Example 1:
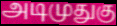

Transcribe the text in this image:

அடிமுதுகு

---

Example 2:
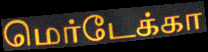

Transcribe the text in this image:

மெர்டேக்கா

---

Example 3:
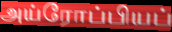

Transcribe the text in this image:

அய்ரோப்பியப்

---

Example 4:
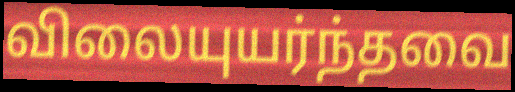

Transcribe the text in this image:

விலையுயர்ந்தவை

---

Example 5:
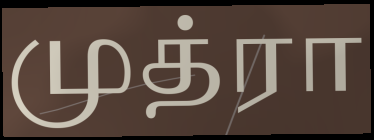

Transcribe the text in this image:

முத்ரா